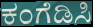
ಕಂಗೆಡಿಸಿ